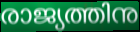
രാജ്യത്തിനു